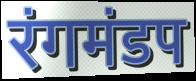
रंगमंडप